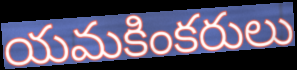
యమకింకరులు